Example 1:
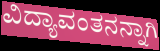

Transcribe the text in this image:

ವಿದ್ಯಾವಂತನನ್ನಾಗಿ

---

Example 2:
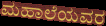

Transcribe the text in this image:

ಮಹಾಲೆಯವರ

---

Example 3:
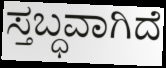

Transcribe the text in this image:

ಸ್ತಬ್ಧವಾಗಿದೆ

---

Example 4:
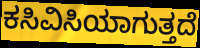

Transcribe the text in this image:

ಕಸಿವಿಸಿಯಾಗುತ್ತದೆ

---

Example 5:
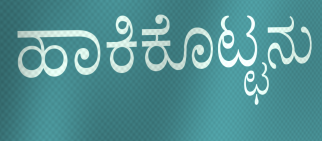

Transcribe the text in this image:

ಹಾಕಿಕೊಟ್ಟನು